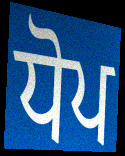
ਧੋਪ